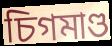
চিগমাণ্ড